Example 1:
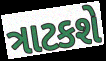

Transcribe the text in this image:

ત્રાટકશે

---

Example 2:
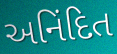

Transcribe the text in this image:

અનિંદિત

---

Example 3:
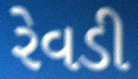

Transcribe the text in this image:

રેવડી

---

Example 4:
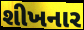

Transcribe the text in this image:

શીખનાર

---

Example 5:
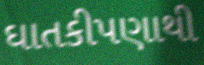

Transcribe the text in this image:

ઘાતકીપણાથી